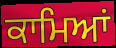
ਕਾਮਿਆਂ